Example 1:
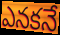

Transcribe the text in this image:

ఎనకనే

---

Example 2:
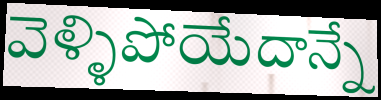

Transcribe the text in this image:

వెళ్ళిపోయేదాన్నే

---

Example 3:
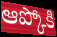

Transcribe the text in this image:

ఆప్కోకి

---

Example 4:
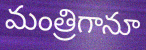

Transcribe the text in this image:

మంత్రిగానూ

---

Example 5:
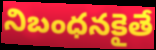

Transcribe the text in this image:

నిబంధనకైతే